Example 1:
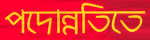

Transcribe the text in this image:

পদোন্নতিতে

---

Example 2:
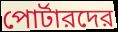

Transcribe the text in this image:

পোর্টারদের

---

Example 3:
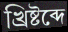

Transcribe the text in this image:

খ্রিষ্টব্দে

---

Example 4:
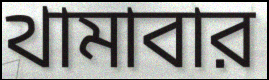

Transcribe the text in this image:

থামাবার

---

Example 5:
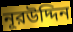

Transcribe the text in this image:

নূরউদ্দিন